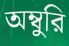
অম্বুরি